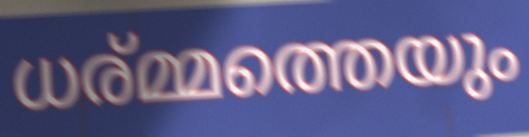
ധര്മ്മത്തെയും